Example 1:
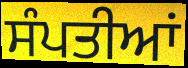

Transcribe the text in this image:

ਸੰਪਤੀਆਂ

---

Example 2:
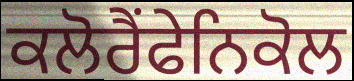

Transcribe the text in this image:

ਕਲੋਰੈਂਫੇਨਿਕੋਲ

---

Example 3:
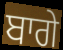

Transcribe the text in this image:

ਬਾਗੇ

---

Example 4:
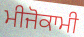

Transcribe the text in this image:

ਮੀਜੋਕਾਮੀ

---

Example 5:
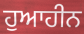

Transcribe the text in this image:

ਹੁਆਹੀਨ